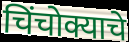
चिंचोक्याचे